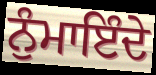
ਨੁੰਮਾਇੰਦੇ